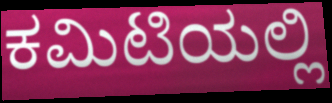
ಕಮಿಟಿಯಲ್ಲಿ